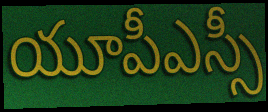
యూపీఎస్సీ